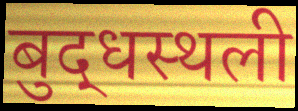
बुद्धस्थली